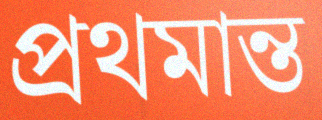
প্ৰথমান্ত